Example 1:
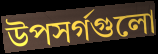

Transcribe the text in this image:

উপসর্গগুলো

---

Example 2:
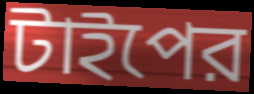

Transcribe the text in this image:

টাইপের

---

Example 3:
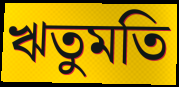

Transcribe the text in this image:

ঋতুমতি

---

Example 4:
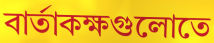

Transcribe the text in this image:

বার্তাকক্ষগুলোতে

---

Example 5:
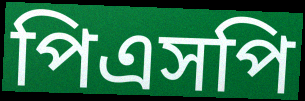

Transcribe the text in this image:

পিএসপি